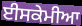
ਈਸਕੇਮੀਆ